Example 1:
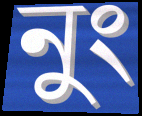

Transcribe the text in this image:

নুং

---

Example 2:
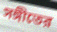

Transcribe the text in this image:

সঙ্গীতের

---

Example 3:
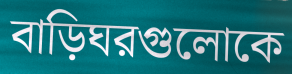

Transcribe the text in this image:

বাড়িঘরগুলোকে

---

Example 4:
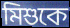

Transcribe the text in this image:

মিশুকে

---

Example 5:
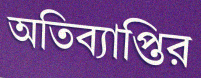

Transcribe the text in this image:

অতিব্যাপ্তির